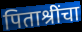
पिताश्रींचा